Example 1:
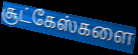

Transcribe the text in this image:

சூட்கேஸ்களை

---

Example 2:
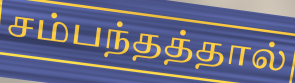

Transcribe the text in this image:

சம்பந்தத்தால்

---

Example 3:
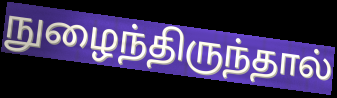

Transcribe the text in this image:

நுழைந்திருந்தால்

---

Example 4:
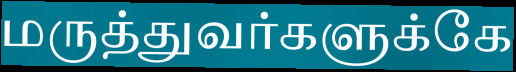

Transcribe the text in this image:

மருத்துவர்களுக்கே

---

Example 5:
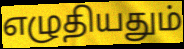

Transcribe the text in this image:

எழுதியதும்